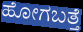
ಹೋಗಬತ್ತೆ